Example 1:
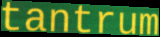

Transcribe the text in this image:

tantrum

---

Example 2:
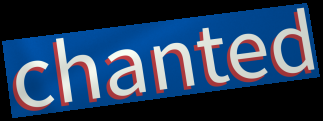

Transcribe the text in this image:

chanted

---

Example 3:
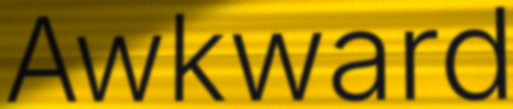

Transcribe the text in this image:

Awkward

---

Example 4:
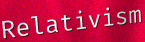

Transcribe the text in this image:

Relativism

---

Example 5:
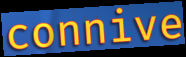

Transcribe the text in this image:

connive